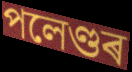
পলেণ্ডৰ